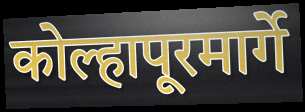
कोल्हापूरमार्गे